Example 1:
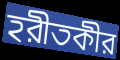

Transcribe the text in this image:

হরীতকীর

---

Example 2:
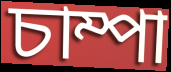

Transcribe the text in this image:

চাম্পা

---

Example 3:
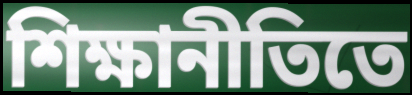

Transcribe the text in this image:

শিক্ষানীতিতে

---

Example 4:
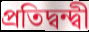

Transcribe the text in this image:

প্রতিদ্বন্দ্বী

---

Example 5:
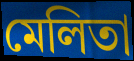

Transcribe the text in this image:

মেলিতা